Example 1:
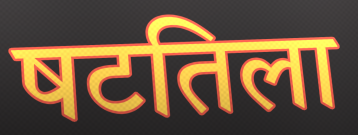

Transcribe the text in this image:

षटतिला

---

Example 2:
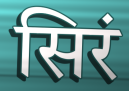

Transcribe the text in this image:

सिरं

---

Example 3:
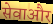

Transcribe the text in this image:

सेवाऔर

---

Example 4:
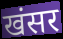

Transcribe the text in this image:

खंसर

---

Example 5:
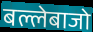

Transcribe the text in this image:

बल्लेबाजो